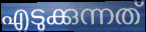
എടുക്കുന്നത്